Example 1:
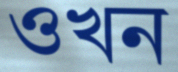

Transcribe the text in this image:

ওখন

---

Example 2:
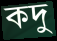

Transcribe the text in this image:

কদু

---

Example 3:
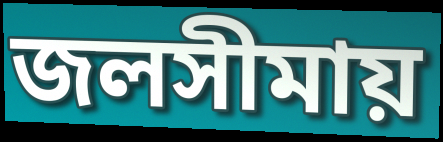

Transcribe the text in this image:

জলসীমায়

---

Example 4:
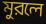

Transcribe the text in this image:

মুরলে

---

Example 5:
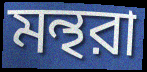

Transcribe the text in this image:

মন্থরা